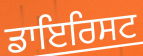
ਡਾਇਰਿਸਟ